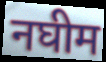
नघीम